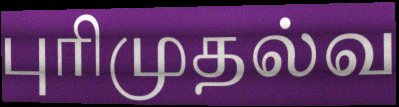
புரிமுதல்வ